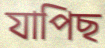
যাপিছ